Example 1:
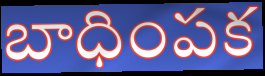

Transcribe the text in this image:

బాధింపక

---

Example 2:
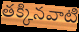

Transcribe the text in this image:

తక్కినవాటి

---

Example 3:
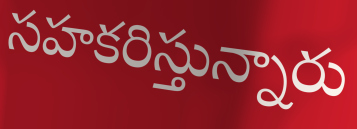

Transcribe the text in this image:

సహకరిస్తున్నారు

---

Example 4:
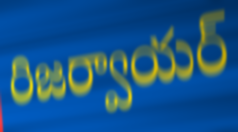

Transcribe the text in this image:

రిజర్వాయర్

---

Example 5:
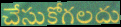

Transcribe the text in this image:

చేసుకోగలదు